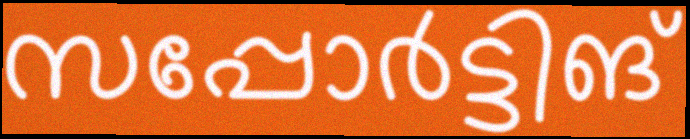
സപ്പോർട്ടിങ്